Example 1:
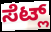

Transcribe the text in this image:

ಸೆಟ್ಲ್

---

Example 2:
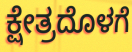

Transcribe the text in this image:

ಕ್ಷೇತ್ರದೊಳಗೆ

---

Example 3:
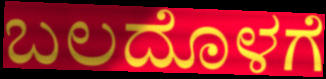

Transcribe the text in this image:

ಬಲದೊಳಗೆ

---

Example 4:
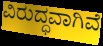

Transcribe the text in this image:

ವಿರುದ್ಧವಾಗಿವೆ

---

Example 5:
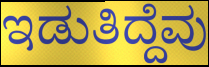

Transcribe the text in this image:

ಇಡುತಿದ್ದೆವು